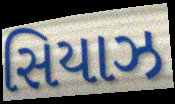
સિયાઝ